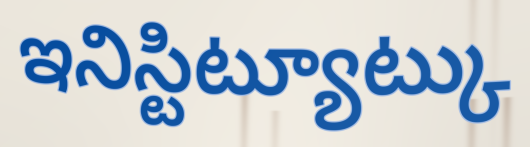
ఇనిస్టిట్యూట్కు